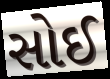
સોઈ